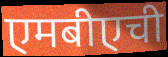
एमबीएची